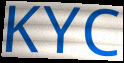
KYC